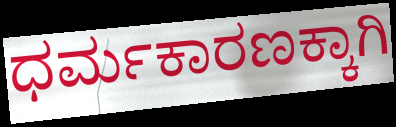
ಧರ್ಮಕಾರಣಕ್ಕಾಗಿ